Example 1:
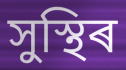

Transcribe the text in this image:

সুস্থিৰ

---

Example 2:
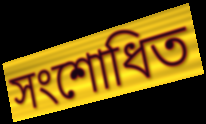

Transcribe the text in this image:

সংশোধিত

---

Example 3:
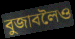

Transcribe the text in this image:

বুজাবলৈও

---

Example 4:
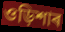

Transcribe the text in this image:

ওড়িশাৰ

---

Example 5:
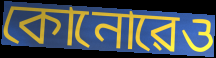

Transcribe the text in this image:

কোনোৱেও